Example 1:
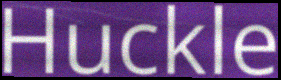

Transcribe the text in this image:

Huckle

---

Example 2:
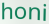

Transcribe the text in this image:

honi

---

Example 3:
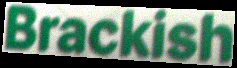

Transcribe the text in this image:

Brackish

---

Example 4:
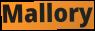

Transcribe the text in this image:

Mallory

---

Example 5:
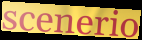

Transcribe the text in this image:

scenerio